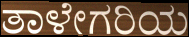
ತಾಳೇಗರಿಯ